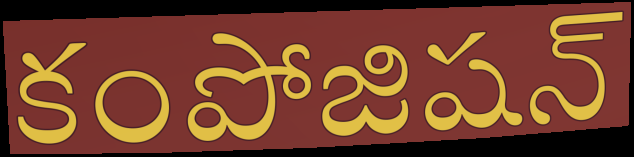
కంపోజిషన్